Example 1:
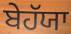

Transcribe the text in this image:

ਬੇਹੱਯਾ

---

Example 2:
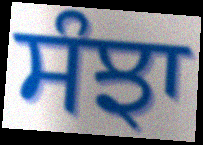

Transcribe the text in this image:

ਸੰਝਾ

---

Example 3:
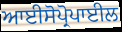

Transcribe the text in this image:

ਆਈਸੋਪ੍ਰੋਪਾਈਲ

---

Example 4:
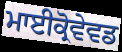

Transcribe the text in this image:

ਮਾਈਕ੍ਰੋਵੇਵਡ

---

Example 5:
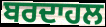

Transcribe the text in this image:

ਬਰਦਾਹਲ